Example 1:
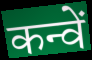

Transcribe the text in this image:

कन्वें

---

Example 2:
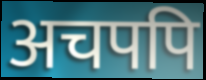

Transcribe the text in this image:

अचपपि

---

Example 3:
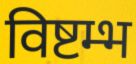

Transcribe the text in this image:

विष्टम्भ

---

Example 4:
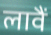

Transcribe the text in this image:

लावैं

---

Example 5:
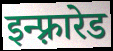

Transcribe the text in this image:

इन्फ़्रारेड